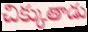
చిక్కుతాడు